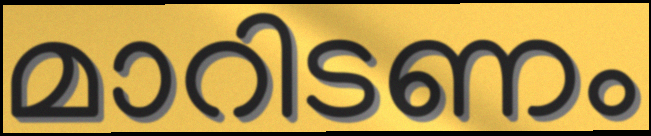
മാറിടണം